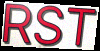
RST